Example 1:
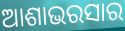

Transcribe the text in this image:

ଆଶାଭରସାର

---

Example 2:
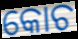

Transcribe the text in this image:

କୋଚ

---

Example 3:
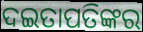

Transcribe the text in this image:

ଦଇତାପତିଙ୍କର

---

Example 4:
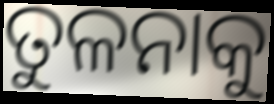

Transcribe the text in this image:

ତୁଳନାକୁ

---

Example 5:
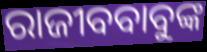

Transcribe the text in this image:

ରାଜୀବବାବୁଙ୍କ